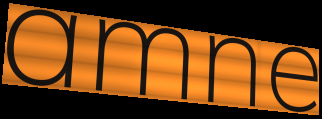
amne